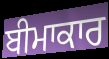
ਬੀਮਾਕਾਰ